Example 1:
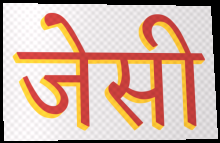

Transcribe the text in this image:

जेसी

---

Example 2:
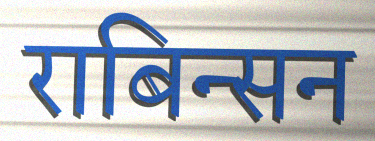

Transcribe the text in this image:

राबिन्सन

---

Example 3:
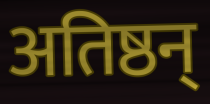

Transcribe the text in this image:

अतिष्ठन्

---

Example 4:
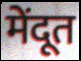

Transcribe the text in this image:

मेंदूत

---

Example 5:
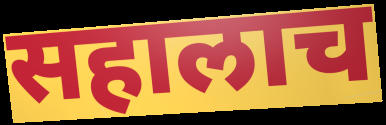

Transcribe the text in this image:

सहालाच